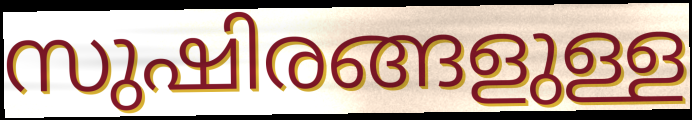
സുഷിരങ്ങളുള്ള